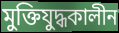
মুক্তিযুদ্ধকালীন